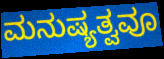
ಮನುಷ್ಯತ್ವವೂ